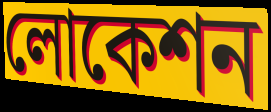
লোকেশন